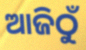
ଆଜିଠୁଁ